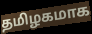
தமிழகமாக